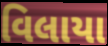
વિલાયા